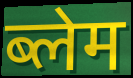
ब्लेम